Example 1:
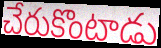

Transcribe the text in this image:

చేరుకొంటాడు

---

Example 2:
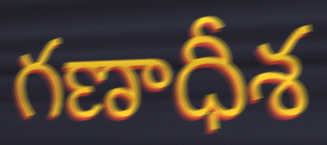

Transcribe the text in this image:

గణాధీశ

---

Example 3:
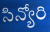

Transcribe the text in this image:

సిన్యోరి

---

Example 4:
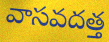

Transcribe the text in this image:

వాసవదత్త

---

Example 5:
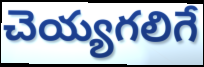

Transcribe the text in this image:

చెయ్యగలిగే